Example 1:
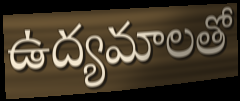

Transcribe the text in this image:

ఉద్యమాలతో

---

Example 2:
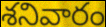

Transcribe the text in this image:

శనివారం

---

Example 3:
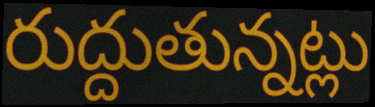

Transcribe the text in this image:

రుద్దుతున్నట్లు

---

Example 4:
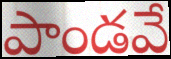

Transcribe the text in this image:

పాండవే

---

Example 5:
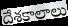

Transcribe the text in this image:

దేశకాలాలు